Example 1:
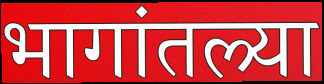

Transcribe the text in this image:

भागांतल्या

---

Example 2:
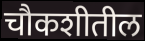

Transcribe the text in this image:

चौकशीतील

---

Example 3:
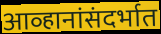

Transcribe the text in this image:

आव्हानांसंदर्भात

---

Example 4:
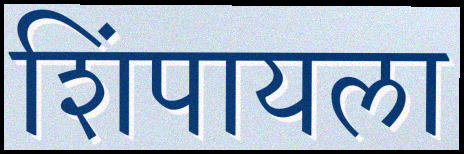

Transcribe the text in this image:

शिंपायला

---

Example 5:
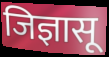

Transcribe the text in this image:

जिज्ञासू